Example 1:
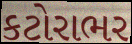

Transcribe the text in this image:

કટોરાભર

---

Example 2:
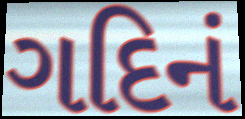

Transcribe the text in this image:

ગદિનં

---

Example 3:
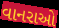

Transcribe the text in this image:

વાનરાઓ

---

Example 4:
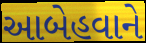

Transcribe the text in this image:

આબેહવાને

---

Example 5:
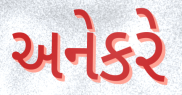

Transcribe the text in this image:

અનેકરે